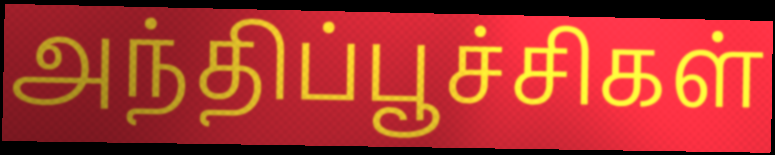
அந்திப்பூச்சிகள்